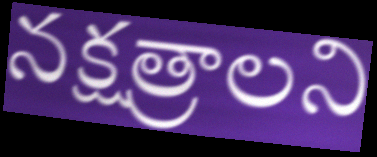
నక్షత్రాలని